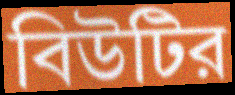
বিউটির